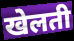
खेलती